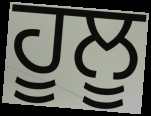
ਹੂਲੂ